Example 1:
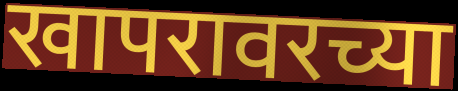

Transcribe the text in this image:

खापरावरच्या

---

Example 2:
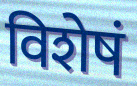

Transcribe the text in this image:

विशेषं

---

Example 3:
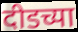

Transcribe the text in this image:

दीडच्या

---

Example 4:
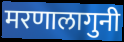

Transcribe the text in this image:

मरणालागुनी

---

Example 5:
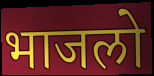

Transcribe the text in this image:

भाजलो